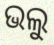
ଭଲୁ